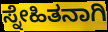
ಸ್ನೇಹಿತನಾಗಿ